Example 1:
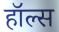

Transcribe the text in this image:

हॉल्स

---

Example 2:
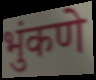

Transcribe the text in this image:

भुंकणे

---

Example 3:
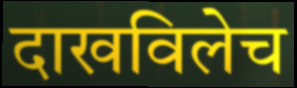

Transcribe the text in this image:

दाखविलेच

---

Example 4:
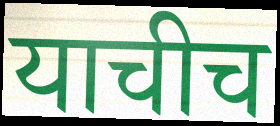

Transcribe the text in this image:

याचीच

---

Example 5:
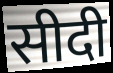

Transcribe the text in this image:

सीदी